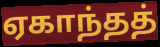
ஏகாந்தத்